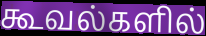
கூவல்களில்